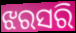
ଝରସରି